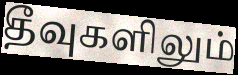
தீவுகளிலும்